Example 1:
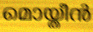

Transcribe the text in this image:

മൊയ്തീൻ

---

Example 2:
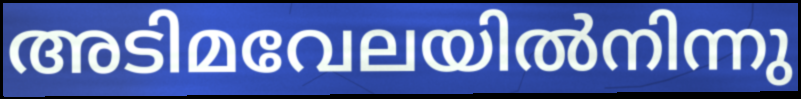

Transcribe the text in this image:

അടിമവേലയിൽനിന്നു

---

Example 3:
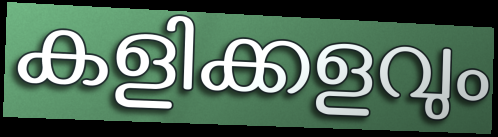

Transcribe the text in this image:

കളിക്കളവും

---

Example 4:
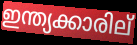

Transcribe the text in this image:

ഇന്ത്യക്കാരില്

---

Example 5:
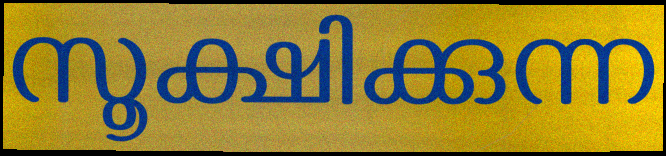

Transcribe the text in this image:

സൂക്ഷിക്കുന്ന